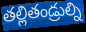
తల్లితండ్రుల్ని